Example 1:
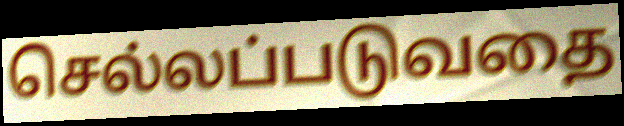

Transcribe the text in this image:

செல்லப்படுவதை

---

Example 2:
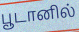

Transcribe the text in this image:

பூடானில்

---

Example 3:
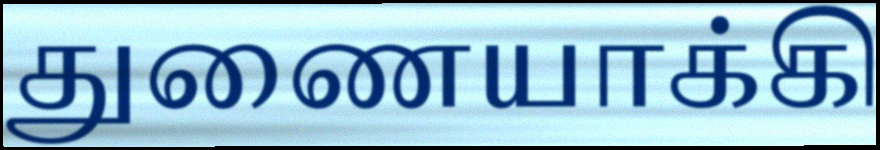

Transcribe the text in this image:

துணையாக்கி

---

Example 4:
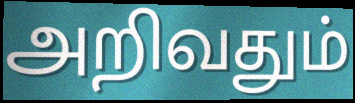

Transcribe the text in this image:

அறிவதும்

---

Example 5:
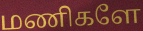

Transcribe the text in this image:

மணிகளே